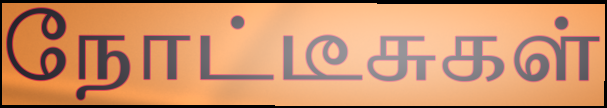
நோட்டீசுகள்